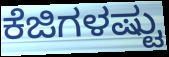
ಕೆಜಿಗಳಷ್ಟು